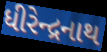
ધીરેન્દ્રનાથ